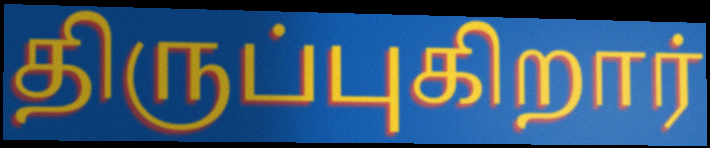
திருப்புகிறார்